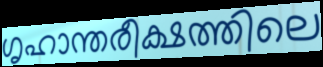
ഗൃഹാന്തരീക്ഷത്തിലെ